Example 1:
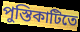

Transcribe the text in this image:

পুস্তিকাটিতে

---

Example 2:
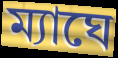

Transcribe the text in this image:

ম্যাঘে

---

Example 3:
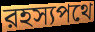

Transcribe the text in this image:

রহস্যপথে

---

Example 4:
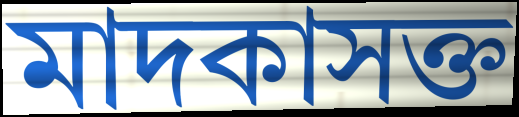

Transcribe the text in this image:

মাদকাসক্ত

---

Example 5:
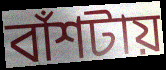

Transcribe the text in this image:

বাঁশটায়